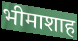
भीमाशाह